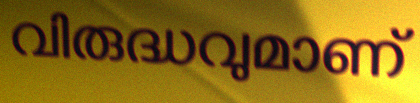
വിരുദ്ധവുമാണ്